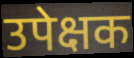
उपेक्षक